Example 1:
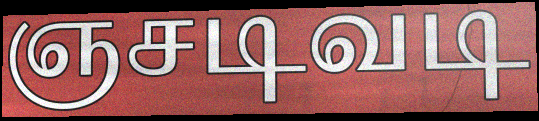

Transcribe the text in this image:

ஞசடிவடி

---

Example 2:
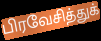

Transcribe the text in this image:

பிரவேசித்துக்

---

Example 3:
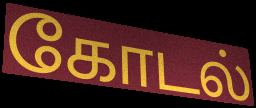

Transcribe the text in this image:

கோடல்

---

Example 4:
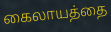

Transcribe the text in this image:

கைலாயத்தை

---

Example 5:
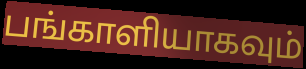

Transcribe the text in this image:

பங்காளியாகவும்